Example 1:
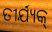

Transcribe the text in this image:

ତୀର୍ଯ୍ୟକ୍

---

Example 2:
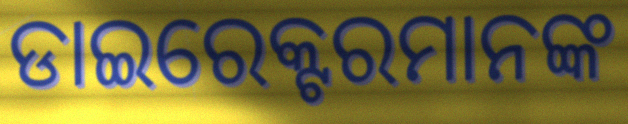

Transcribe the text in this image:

ଡାଇରେକ୍ଟରମାନଙ୍କ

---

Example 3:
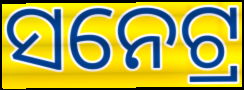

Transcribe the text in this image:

ସନେଟ୍ର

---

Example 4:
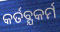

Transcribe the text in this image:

କର୍ତବ୍ଯକର୍ମ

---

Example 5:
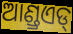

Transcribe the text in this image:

ଆଣ୍ଡ୍ରଏଡ୍